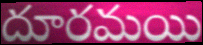
దూరమయి